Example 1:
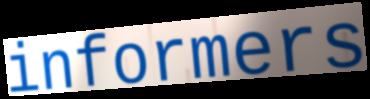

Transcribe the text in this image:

informers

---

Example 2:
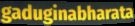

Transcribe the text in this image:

gaduginabharata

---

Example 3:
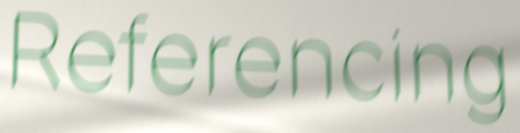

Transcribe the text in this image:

Referencing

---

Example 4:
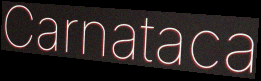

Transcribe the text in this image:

Carnataca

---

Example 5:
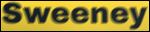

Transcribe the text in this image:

Sweeney